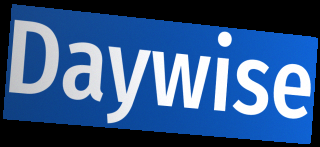
Daywise